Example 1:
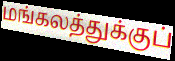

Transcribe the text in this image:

மங்கலத்துக்குப்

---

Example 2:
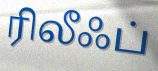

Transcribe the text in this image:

ரிலீஃப்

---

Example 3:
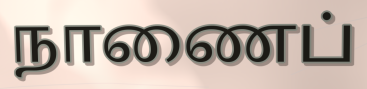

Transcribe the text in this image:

நாணைப்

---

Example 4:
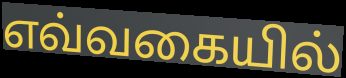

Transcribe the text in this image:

எவ்வகையில்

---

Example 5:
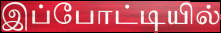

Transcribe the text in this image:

இப்போட்டியில்